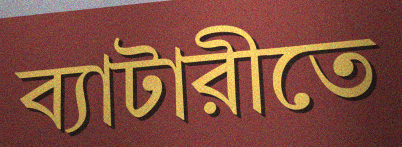
ব্যাটারীতে